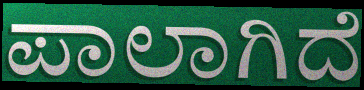
ಪಾಲಾಗಿದೆ